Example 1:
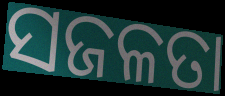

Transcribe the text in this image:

ସଜଳତା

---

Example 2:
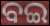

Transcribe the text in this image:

ବଇ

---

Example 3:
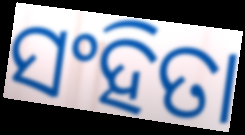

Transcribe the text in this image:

ସଂହିତା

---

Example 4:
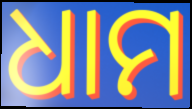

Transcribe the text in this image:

ଧାମ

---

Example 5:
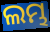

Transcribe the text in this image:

ଲମ୍ଭ